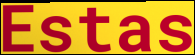
Estas